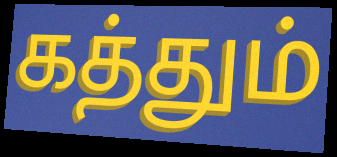
கத்தும்